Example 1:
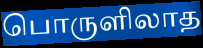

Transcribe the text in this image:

பொருளிலாத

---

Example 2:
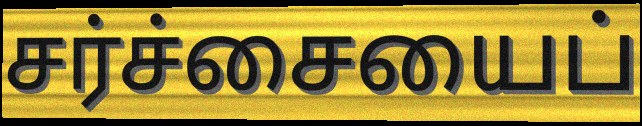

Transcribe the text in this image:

சர்ச்சையைப்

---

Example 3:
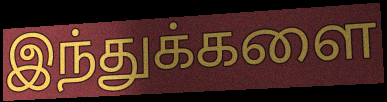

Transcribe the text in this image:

இந்துக்களை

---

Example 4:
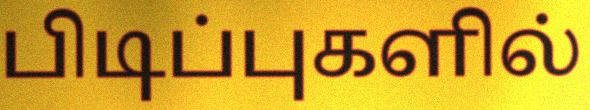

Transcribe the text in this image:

பிடிப்புகளில்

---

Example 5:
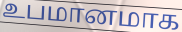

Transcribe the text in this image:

உபமானமாக